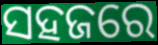
ସହଜରେ